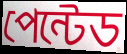
পেন্টেড